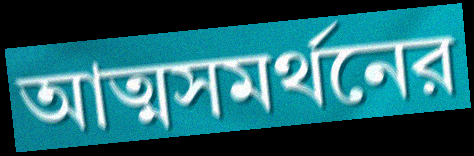
আত্মসমর্থনের